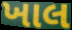
ખાલ